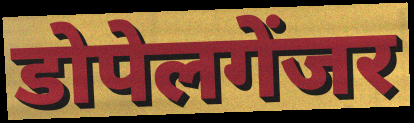
डोपेलगेंजर